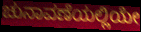
ಚುನಾವಣೆಯಲ್ಲಿಯೇ